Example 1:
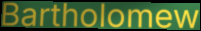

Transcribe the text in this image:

Bartholomew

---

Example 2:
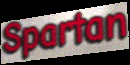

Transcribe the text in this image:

Spartan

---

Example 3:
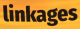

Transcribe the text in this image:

linkages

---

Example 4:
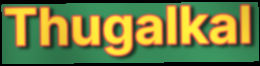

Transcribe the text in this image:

Thugalkal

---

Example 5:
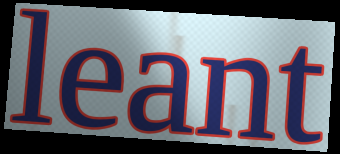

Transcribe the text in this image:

leant